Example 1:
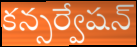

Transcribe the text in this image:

కన్సర్వేషన్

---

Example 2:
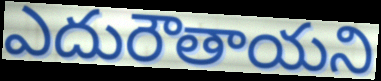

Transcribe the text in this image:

ఎదురౌతాయని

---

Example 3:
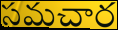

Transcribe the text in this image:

సమచార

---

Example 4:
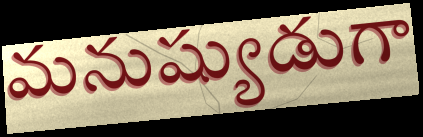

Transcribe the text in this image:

మనుష్యుడుగా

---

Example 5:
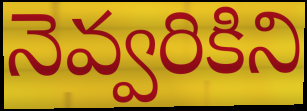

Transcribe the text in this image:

నెవ్వరికిని